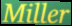
Miller